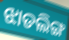
ଝାଡଲିଙ୍ଗ